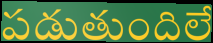
పడుతుందిలే